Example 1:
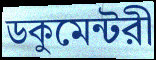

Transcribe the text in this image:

ডকুমেন্টরী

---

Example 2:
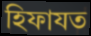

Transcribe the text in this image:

হিফাযত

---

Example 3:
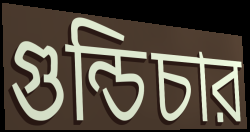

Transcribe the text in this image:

গুন্ডিচার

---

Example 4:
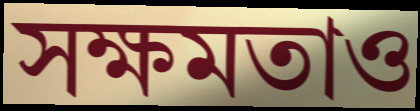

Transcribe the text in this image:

সক্ষমতাও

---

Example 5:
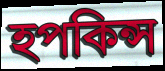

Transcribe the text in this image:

হপকিন্স